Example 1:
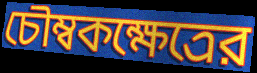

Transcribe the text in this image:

চৌম্বকক্ষেত্রের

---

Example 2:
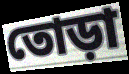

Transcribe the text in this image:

তোড়া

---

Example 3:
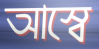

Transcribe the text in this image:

আস্বে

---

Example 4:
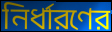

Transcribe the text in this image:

নির্ধারণের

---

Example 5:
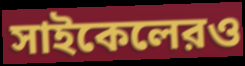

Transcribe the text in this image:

সাইকেলেরও